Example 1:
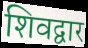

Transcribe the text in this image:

शिवद्वार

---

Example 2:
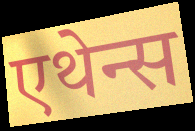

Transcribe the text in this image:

एथेन्स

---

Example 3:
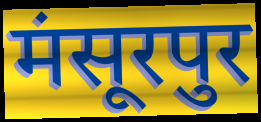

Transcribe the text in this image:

मंसूरपुर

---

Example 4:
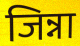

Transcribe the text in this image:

जिन्ना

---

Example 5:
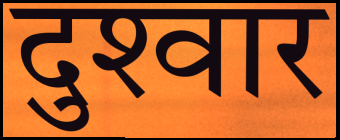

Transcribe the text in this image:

दुश्‍वार